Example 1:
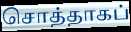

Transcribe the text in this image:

சொத்தாகப்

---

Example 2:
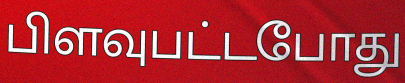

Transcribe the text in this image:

பிளவுபட்டபோது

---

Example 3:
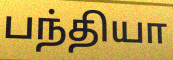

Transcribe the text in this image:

பந்தியா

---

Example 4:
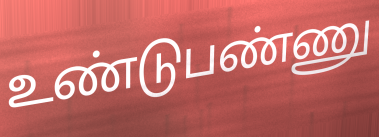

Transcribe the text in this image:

உண்டுபண்ணு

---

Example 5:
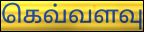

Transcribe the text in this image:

கெவ்வளவு